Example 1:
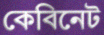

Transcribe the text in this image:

কেবিনেট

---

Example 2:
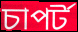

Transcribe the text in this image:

চাপৰ্ট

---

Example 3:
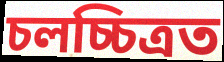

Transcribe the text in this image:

চলচ্চিত্ৰত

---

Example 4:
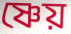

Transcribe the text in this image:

ষ্ণেয়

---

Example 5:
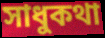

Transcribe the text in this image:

সাধুকথা